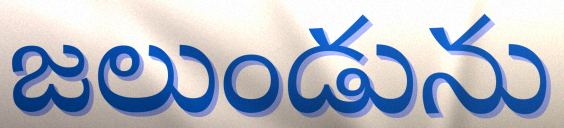
జలుండును